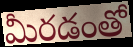
మీరడంతో